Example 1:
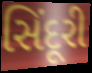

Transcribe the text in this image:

સિંદૂરી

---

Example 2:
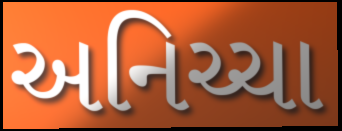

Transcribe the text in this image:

અનિચ્ચા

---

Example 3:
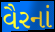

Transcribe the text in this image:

વૈરનાં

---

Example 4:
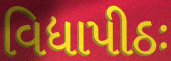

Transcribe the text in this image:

વિદ્યાપીઠઃ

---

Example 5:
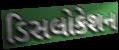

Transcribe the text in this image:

ડિસલોકેશન